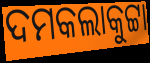
ଦମକଲାକୁଟ୍ଟା